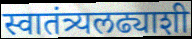
स्वातंत्र्यलढ्याशी